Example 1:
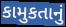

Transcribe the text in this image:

કામુકતાનું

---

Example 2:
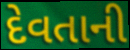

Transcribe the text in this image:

દેવતાની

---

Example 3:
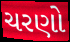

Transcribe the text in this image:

ચરણો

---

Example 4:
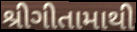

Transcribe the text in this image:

શ્રીગીતામાથી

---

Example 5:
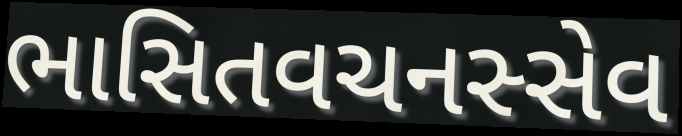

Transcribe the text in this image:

ભાસિતવચનસ્સેવ